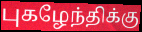
புகழேந்திக்கு